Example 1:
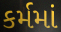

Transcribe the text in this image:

કર્મમાં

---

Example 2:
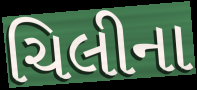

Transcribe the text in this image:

ચિલીના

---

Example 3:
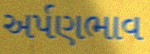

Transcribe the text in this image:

અર્પણભાવ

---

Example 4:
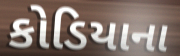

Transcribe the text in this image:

કોડિયાના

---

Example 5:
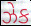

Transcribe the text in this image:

ઝેક